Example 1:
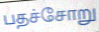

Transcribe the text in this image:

பதச்சோறு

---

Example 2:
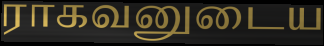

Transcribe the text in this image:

ராகவனுடைய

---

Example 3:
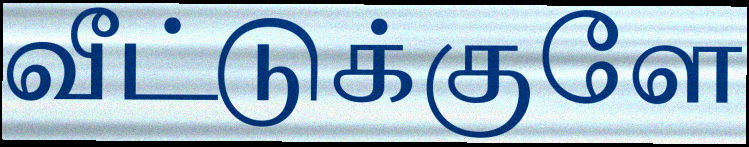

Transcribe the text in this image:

வீட்டுக்குளே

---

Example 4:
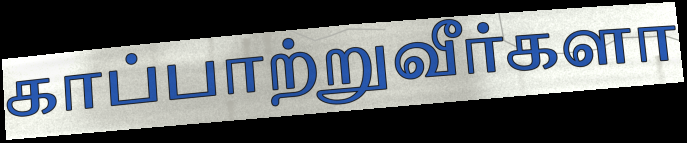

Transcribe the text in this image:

காப்பாற்றுவீர்களா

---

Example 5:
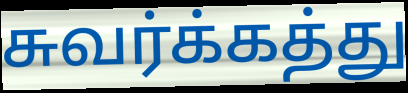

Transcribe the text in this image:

சுவர்க்கத்து